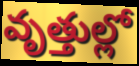
వృత్తుల్లో